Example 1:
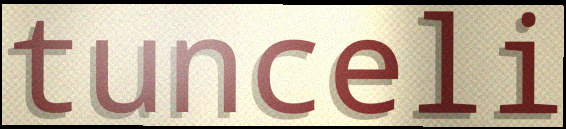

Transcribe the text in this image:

tunceli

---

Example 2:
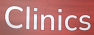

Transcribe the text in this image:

Clinics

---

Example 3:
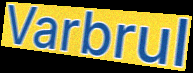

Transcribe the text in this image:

Varbrul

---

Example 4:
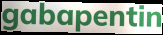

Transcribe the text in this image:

gabapentin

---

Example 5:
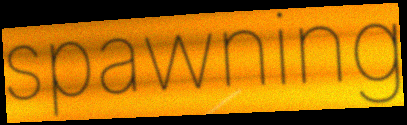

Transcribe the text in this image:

spawning